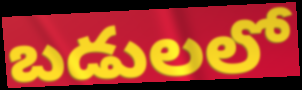
బడులలో